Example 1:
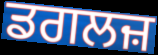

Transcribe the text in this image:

ਡਗਲਜ਼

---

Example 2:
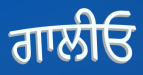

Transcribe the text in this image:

ਗਾਲੀਓ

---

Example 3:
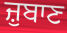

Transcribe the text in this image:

ਜ਼ੁਬਾਣ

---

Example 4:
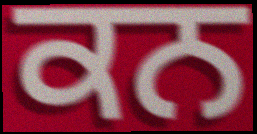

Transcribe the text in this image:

ਕਨ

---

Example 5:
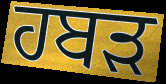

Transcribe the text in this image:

ਹਬੜ